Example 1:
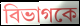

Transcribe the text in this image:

বিভাগকে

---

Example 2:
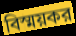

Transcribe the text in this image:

বিস্ময়কর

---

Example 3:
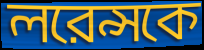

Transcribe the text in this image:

লরেন্সকে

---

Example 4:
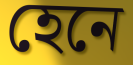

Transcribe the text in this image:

হেনে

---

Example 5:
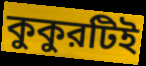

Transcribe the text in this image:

কুকুরটিই